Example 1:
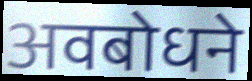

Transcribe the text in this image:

अवबोधने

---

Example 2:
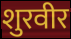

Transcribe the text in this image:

शुरवीर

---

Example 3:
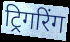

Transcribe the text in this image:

ट्रिगरिंग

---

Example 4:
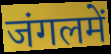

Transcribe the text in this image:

जंगलमें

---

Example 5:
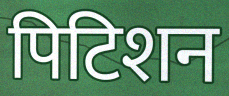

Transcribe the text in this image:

पिटिशन